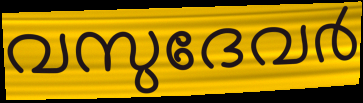
വസുദേവർ